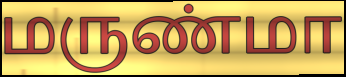
மருண்மா